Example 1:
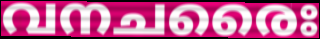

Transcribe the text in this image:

വനചരൈഃ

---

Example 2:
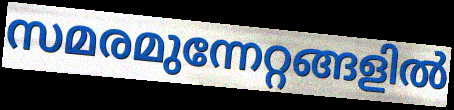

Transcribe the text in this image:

സമരമുന്നേറ്റങ്ങളിൽ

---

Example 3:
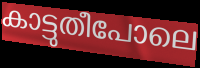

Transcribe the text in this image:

കാട്ടുതീപോലെ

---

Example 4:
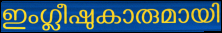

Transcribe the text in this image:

ഇംഗ്ലീഷുകാരുമായി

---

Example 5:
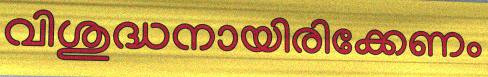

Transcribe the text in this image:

വിശുദ്ധനായിരിക്കേണം